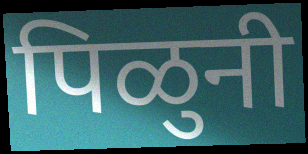
पिळुनी